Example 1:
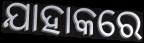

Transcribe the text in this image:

ଯାହାକରେ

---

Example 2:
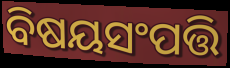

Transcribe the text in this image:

ବିଷୟସଂପତ୍ତି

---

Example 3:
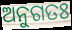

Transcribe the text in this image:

ଅନୁଗତଃ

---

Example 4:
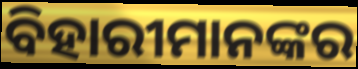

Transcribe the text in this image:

ବିହାରୀମାନଙ୍କର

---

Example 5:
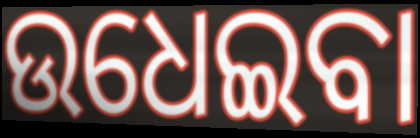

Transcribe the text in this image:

ଉଧେଇବା